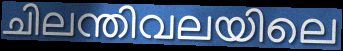
ചിലന്തിവലയിലെ